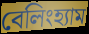
বেলিংহ্যাম